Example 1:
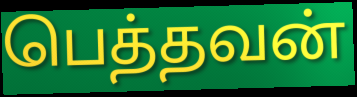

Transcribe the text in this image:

பெத்தவன்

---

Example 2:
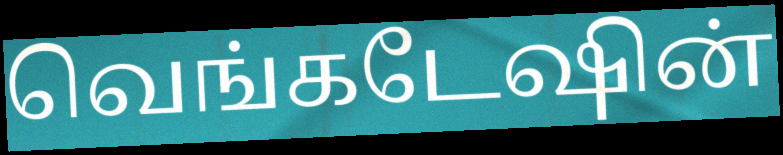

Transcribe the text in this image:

வெங்கடேஷின்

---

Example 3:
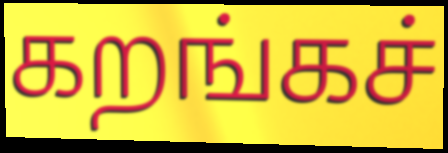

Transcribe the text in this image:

கறங்கச்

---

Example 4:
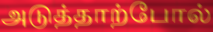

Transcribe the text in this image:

அடுத்தாற்போல்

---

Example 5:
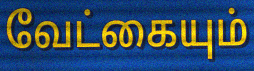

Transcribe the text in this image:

வேட்கையும்